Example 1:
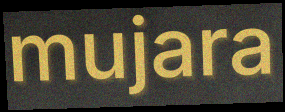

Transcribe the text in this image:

mujara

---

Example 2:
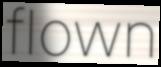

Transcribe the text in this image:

flown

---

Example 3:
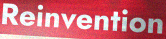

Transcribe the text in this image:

Reinvention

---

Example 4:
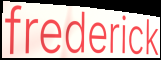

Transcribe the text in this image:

frederick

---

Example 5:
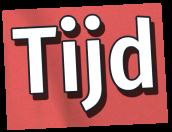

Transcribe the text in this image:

Tijd